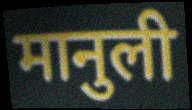
मानुली